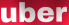
uber